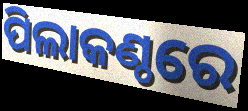
ପିଲାକଣ୍ଠରେ